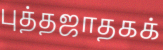
புத்தஜாதகக்